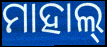
ମାହାଲ୍